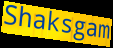
Shaksgam